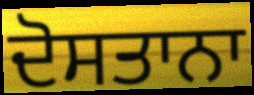
ਦੋਸਤਾਨਾ